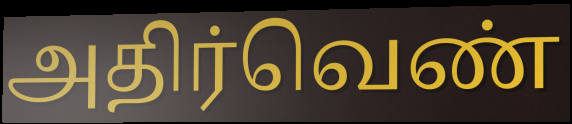
அதிர்வெண்